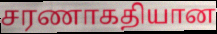
சரணாகதியான